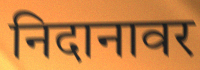
निदानावर